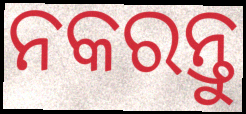
ନକରନ୍ତୁ